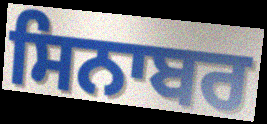
ਸਿਨਾਬਰ